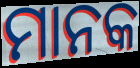
ମାନକ